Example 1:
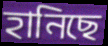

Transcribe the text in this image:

হানিছে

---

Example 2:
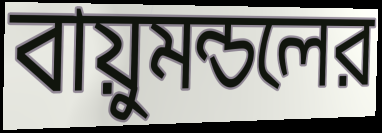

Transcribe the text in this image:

বায়ুমন্ডলের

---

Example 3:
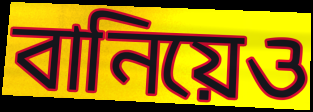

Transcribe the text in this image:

বানিয়েও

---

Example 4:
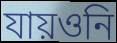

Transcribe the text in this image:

যায়ওনি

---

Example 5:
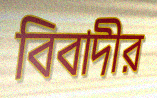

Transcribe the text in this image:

বিবাদীর